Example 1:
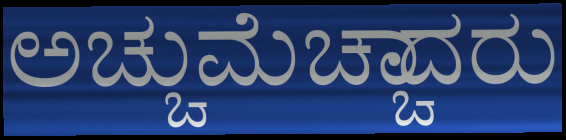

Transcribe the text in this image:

ಅಚ್ಚುಮೆಚ್ಚಾದರು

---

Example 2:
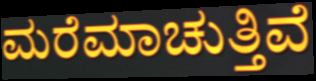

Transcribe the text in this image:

ಮರೆಮಾಚುತ್ತಿವೆ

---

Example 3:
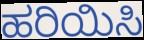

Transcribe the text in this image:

ಹರಿಯಿಸಿ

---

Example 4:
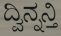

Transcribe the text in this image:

ದ್ವಿನ್ನನ್ತಿ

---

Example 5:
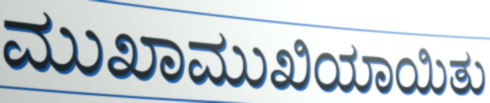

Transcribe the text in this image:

ಮುಖಾಮುಖಿಯಾಯಿತು